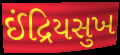
ઈંદ્રિયસુખ